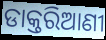
ଡାକ୍ତରିଆଣୀ